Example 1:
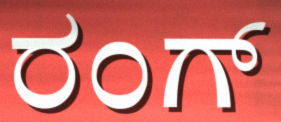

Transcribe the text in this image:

ರಂಗ್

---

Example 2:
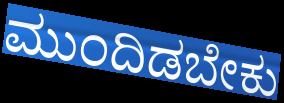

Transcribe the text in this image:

ಮುಂದಿಡಬೇಕು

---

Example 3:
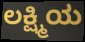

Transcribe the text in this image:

ಲಕ್ಷ್ಮಿಯ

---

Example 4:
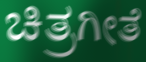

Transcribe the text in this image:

ಚಿತ್ರಗೀತೆ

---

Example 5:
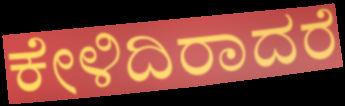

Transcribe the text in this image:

ಕೇಳಿದಿರಾದರೆ